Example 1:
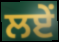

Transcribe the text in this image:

ਲਏਂ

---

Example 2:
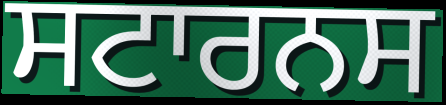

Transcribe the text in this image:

ਸਟਾਰਨਸ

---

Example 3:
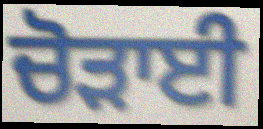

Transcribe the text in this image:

ਚੋੜਾਈ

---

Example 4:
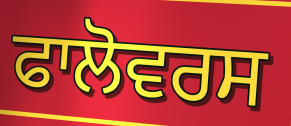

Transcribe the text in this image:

ਫਾਲੋਵਰਸ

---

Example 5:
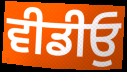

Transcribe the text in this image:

ਵੀਡੀਓੁ